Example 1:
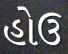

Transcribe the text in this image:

હોઉ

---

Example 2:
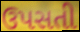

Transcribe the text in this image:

ઉપસતી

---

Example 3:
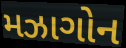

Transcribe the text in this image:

મઝાગોન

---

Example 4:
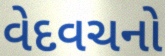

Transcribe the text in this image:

વેદવચનો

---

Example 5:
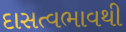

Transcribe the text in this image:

દાસત્વભાવથી